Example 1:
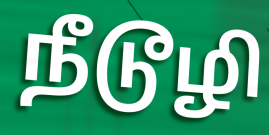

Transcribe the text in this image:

நீடூழி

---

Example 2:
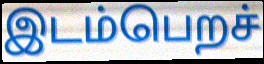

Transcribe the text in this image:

இடம்பெறச்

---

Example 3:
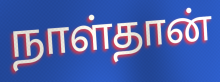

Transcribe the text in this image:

நாள்தான்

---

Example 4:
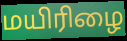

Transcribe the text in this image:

மயிரிழை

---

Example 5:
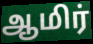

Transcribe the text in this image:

ஆமிர்